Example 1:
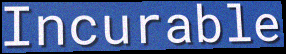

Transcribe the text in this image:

Incurable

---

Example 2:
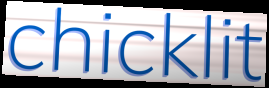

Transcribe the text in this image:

chicklit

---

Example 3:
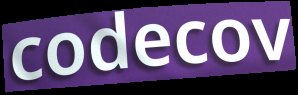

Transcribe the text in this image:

codecov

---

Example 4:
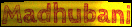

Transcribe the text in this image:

Madhubani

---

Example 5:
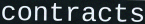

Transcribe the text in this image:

contracts